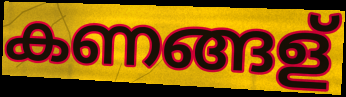
കണങ്ങള്